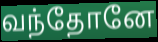
வந்தோனே